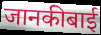
जानकीबाई